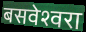
बसवेश्वरा